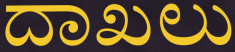
ದಾಖಲು